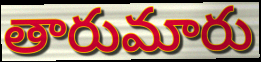
తారుమారు